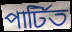
পাৰ্টিত